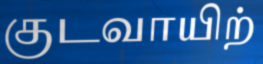
குடவாயிற்